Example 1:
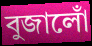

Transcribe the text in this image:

বুজালোঁ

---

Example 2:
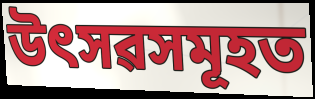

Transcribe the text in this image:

উৎসৱসমূহত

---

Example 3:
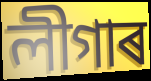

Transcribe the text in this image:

লীগাৰ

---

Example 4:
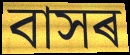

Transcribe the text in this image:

বাসৰ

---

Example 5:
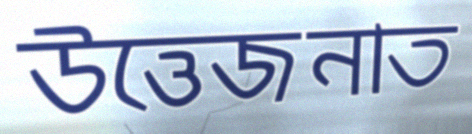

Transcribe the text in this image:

উত্তেজনাত